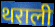
थराली